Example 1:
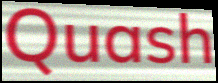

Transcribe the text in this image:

Quash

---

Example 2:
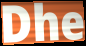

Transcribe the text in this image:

Dhe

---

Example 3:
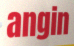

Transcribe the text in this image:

angin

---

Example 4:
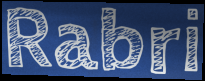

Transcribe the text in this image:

Rabri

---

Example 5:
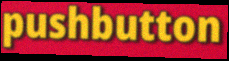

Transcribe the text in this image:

pushbutton